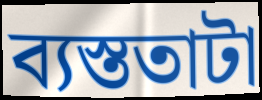
ব্যস্ততাটা